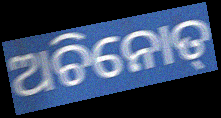
ଅଚିନୋତ୍